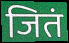
जितं